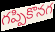
గప్పికొనగ